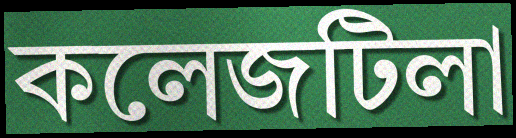
কলেজটিলা